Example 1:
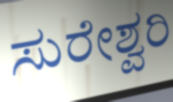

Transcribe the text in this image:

ಸುರೇಶ್ವರಿ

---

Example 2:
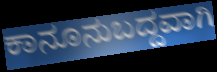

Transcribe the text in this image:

ಕಾನೂನುಬದ್ದವಾಗಿ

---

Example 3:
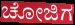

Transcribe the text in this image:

ಚೋಜಿಗ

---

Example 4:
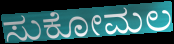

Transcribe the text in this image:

ಸುಕೋಮಲ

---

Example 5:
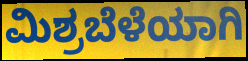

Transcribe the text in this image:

ಮಿಶ್ರಬೆಳೆಯಾಗಿ